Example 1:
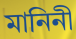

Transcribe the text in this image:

মানিনী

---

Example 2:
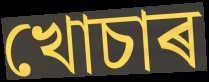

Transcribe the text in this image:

খোচাৰ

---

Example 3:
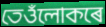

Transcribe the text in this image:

তেওঁলোকৰে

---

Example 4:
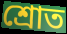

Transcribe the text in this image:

শ্ৰোত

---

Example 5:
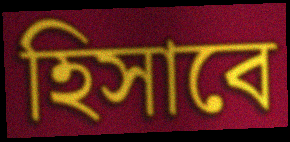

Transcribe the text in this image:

হিসাবে